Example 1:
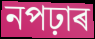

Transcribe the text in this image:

নপঢ়াৰ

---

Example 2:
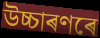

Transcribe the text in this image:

উচ্চাৰণৰে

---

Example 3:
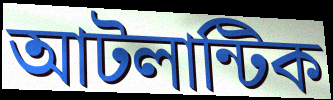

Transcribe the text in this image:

আটলান্টিক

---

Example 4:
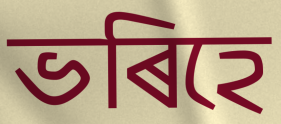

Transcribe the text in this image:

ভৰিহে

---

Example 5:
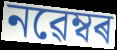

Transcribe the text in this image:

নৱেম্বৰ